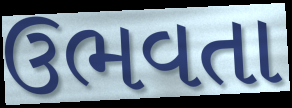
ઉભવતા